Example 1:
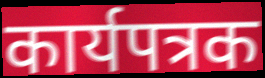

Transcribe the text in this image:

कार्यपत्रक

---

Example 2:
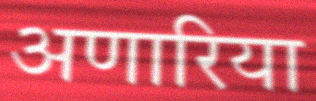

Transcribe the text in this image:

अणारिया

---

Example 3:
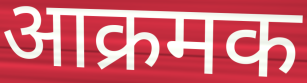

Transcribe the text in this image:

आक्रमक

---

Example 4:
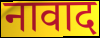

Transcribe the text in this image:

नावाद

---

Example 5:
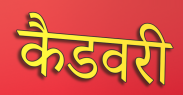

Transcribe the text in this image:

कैडवरी